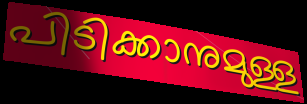
പിടിക്കാനുമുള്ള